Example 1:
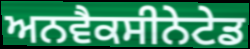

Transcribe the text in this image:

ਅਨਵੈਕਸੀਨੇਟੇਡ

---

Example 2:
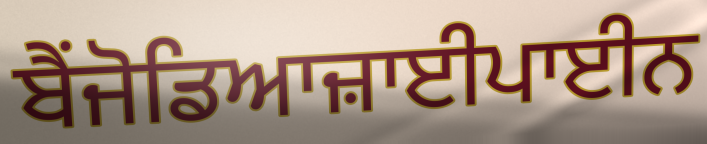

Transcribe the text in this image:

ਬੈਂਜੋਡਿਆਜ਼ਾਈਪਾਈਨ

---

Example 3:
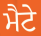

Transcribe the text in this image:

ਮੈਟੇ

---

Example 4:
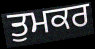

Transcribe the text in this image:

ਤੁਮਕਰ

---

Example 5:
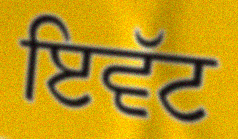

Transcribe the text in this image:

ਇਵੱਟ